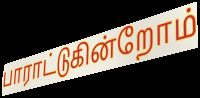
பாராட்டுகின்றோம்